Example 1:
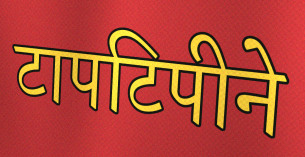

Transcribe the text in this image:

टापटिपीने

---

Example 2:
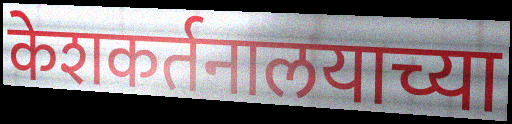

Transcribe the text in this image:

केशकर्तनालयाच्या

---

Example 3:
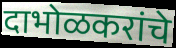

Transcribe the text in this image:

दाभोळकरांचे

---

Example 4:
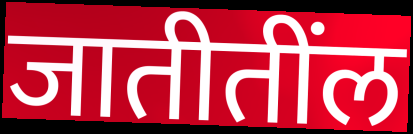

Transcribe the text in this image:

जातीतींल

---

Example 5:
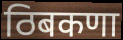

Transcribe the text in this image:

ठिबकणा